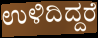
ಉಳಿದಿದ್ದರೆ